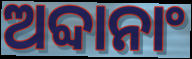
ଅବ୍ଦାନାଂ